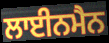
ਲਾਈਨਮੈਨ